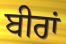
ਬੀਰਾਂ